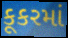
કૂકરમાં